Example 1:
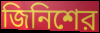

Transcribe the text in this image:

জিনিশের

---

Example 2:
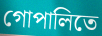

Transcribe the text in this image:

গোপালিতে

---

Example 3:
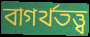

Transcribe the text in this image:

বাগর্থতত্ত্ব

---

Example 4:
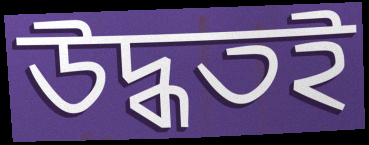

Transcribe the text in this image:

উদ্ধতই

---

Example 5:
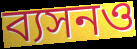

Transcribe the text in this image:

ব্যসনও